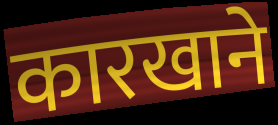
कारखाने